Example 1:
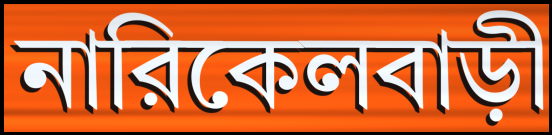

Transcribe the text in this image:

নারিকেলবাড়ী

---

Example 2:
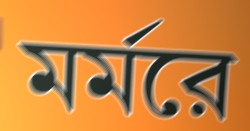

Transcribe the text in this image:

মর্মরে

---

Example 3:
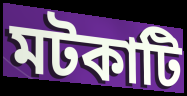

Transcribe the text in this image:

মটকাটি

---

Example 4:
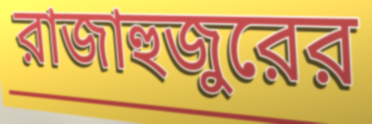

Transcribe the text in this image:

রাজাহুজুরের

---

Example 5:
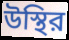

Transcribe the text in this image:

উস্থির